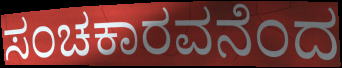
ಸಂಚಕಾರವನೆಂದ